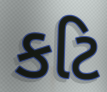
કટિ